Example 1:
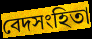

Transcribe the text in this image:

বেদসংহিতা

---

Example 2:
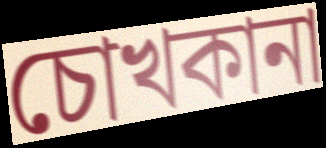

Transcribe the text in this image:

চোখকানা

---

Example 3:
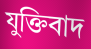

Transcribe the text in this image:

যুক্তিবাদ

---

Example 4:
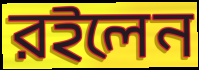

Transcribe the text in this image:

রইলেন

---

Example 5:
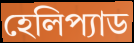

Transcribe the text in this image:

হেলিপ্যাড